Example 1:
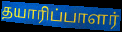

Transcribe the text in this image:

தயாரிப்பாளர்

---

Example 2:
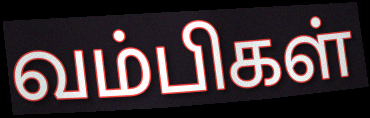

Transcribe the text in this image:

வம்பிகள்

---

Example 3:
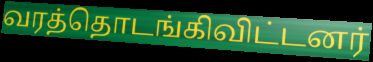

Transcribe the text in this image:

வரத்தொடங்கிவிட்டனர்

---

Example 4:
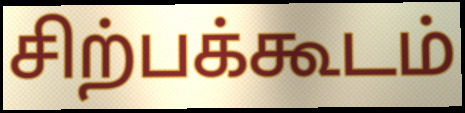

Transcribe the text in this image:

சிற்பக்கூடம்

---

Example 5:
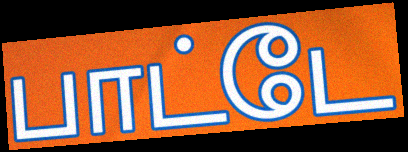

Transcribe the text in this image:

பாட்டே